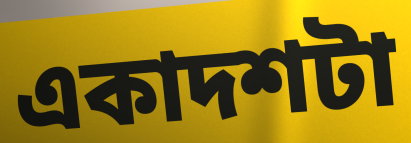
একাদশটা